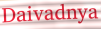
Daivadnya